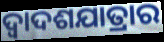
ଦ୍ୱାଦଶଯାତ୍ରାର